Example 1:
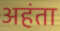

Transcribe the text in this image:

अहंता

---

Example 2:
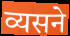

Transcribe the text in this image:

व्यसने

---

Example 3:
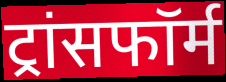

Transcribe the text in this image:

ट्रांसफॉर्म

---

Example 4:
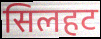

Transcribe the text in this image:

सिलहट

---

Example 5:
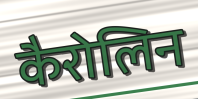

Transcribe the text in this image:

कैरोलिन